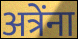
अत्रेंना